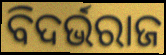
ବିଦର୍ଭରାଜ